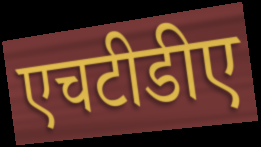
एचटीडीए